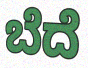
ಬೆದೆ